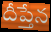
దీప్తేన